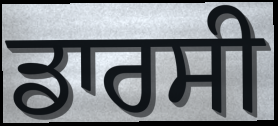
ਡਾਰਸੀ